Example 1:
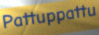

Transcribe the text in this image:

Pattuppattu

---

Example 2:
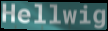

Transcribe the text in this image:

Hellwig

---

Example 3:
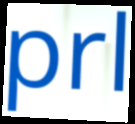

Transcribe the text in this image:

prl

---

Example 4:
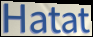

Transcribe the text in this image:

Hatat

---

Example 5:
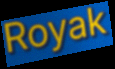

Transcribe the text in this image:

Royak